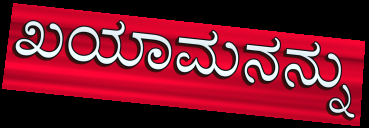
ಖಯಾಮನನ್ನು